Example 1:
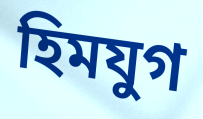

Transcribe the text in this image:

হিমযুগ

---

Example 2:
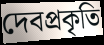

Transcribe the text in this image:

দেবপ্রকৃতি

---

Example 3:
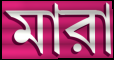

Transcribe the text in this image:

মারা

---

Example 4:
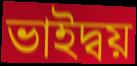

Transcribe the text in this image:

ভাইদ্বয়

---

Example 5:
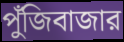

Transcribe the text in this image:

পুঁজিবাজার